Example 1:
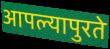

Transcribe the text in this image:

आपल्यापुरते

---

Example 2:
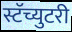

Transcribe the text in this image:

स्टॅच्युटरी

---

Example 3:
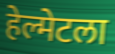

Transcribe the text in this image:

हेल्मेटला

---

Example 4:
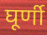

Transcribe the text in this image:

घूर्णी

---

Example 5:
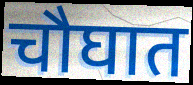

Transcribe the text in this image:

चौघात